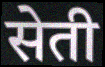
सेती